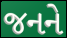
જનને